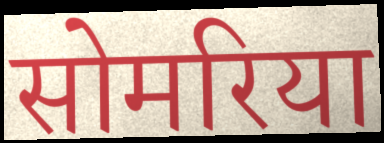
सोमरिया